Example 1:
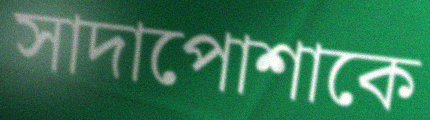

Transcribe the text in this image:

সাদাপোশাকে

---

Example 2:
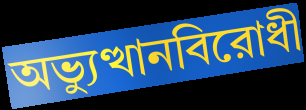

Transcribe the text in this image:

অভ্যুত্থানবিরোধী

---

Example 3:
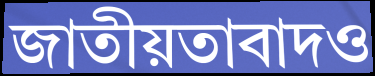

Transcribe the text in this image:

জাতীয়তাবাদও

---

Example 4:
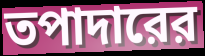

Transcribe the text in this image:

তপাদারের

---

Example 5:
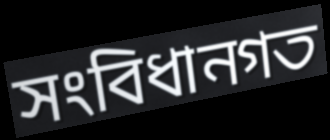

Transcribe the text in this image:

সংবিধানগত